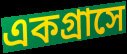
একগ্রাসে